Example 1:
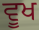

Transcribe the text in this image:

ਵੂਖ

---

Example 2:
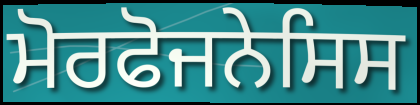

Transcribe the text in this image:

ਮੋਰਫੋਜਨੇਸਿਸ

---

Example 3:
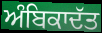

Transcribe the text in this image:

ਅੰਬਿਕਾਦੱਤ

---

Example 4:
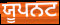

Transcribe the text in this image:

ਯੂਪਨਟ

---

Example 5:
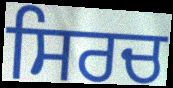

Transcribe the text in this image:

ਸਿਰਚ